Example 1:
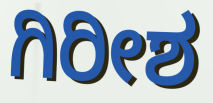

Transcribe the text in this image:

ಗಿರೀಶ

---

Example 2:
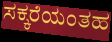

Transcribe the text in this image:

ಸಕ್ಕರೆಯಂತಹ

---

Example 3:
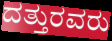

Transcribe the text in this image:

ದತ್ತುರವರು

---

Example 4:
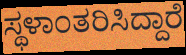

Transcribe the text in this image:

ಸ್ಥಳಾಂತರಿಸಿದ್ದಾರೆ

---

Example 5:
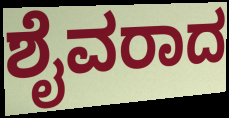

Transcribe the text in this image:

ಶೈವರಾದ